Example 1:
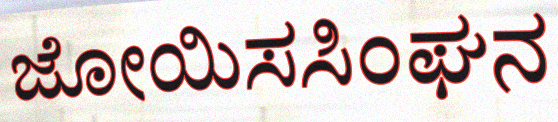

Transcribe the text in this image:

ಜೋಯಿಸಸಿಂಘನ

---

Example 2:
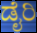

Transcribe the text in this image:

ಡೈರಿ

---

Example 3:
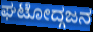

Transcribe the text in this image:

ಘಟೋದ್ಗಜನ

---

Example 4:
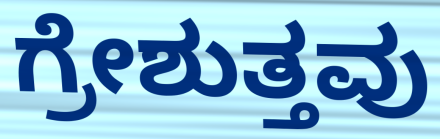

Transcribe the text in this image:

ಗ್ರೇಶುತ್ತವು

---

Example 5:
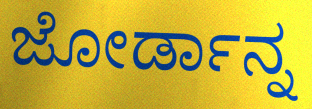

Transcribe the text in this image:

ಜೋರ್ಡಾನ್ನ